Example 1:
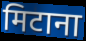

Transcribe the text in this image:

मिटाना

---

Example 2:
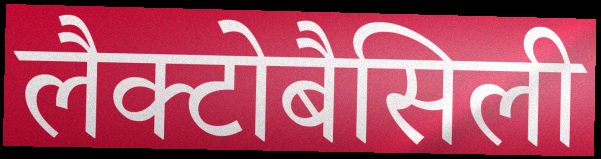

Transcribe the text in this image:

लैक्टोबैसिली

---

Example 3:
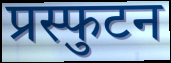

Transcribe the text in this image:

प्रस्‍फुटन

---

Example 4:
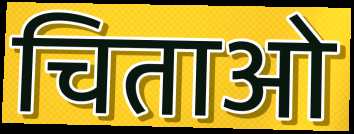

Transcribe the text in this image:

चिताओ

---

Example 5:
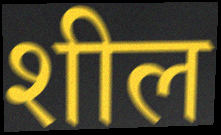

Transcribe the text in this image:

शील